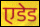
एडेड